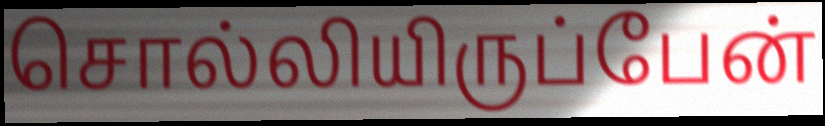
சொல்லியிருப்பேன்